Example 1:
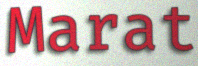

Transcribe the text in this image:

Marat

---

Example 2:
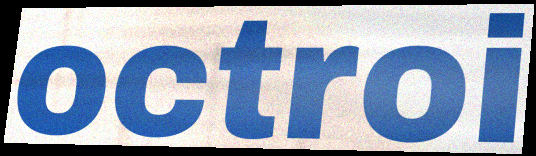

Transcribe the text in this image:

octroi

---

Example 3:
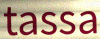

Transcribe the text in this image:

tassa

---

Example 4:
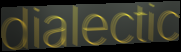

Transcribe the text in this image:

dialectic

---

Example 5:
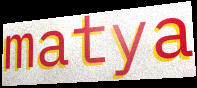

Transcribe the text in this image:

matya